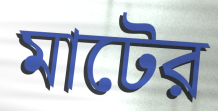
মাটের